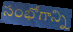
సంభోగాన్ని